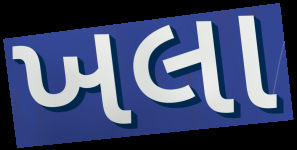
ખલા